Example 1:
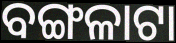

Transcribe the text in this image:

ବଙ୍ଗଳାଟା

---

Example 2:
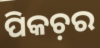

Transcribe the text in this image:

ପିକଚ଼ର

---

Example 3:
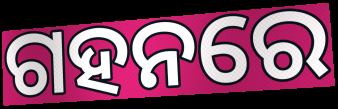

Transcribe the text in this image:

ଗହନରେ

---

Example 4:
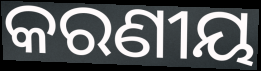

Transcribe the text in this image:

କରଣୀୟ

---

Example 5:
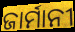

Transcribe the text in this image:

ଜାର୍ମାନୀ